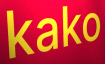
kako